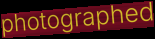
photographed